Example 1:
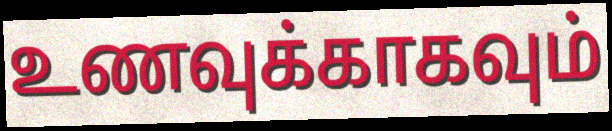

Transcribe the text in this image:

உணவுக்காகவும்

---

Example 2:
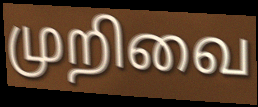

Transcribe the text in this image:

முறிவை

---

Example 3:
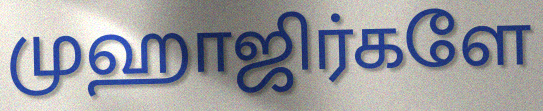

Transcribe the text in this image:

முஹாஜிர்களே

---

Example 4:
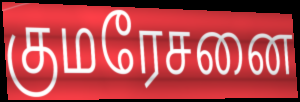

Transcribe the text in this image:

குமரேசனை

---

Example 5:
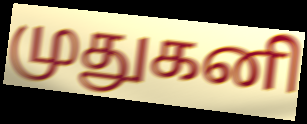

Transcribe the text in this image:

முதுகனி